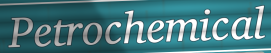
Petrochemical